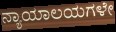
ನ್ಯಾಯಾಲಯಗಳೇ